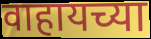
वाहायच्या